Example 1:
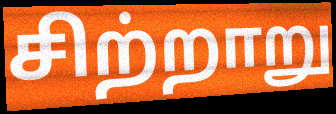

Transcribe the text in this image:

சிற்றாறு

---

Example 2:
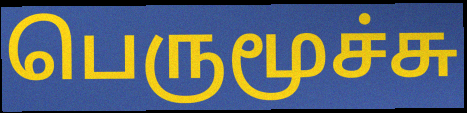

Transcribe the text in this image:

பெருமூச்சு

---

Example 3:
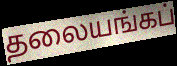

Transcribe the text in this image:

தலையங்கப்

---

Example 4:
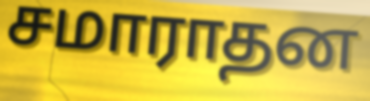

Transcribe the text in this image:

சமாராதன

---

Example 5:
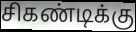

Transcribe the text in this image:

சிகண்டிக்கு